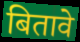
बितावे